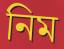
নিম